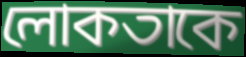
লোকতাকে